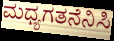
ಮಧ್ಯಗತನೆನಿಸಿ